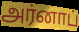
அர்னாப்